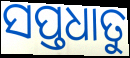
ସପ୍ତଧାତୁ